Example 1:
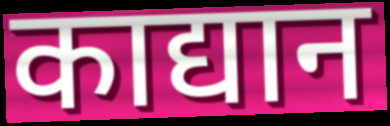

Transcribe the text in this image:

काद्यान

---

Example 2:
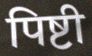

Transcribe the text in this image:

पिष्टी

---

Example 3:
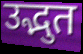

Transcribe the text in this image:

उद्भुत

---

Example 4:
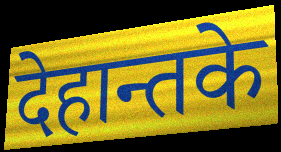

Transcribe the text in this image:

देहान्तके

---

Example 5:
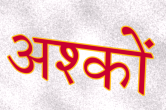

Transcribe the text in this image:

अश्कों